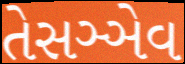
તેસઞ્ઞેવ